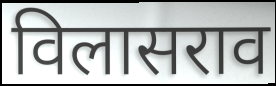
विलासराव